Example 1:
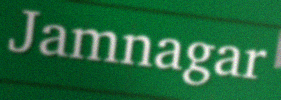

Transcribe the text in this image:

Jamnagar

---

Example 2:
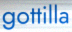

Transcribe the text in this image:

gottilla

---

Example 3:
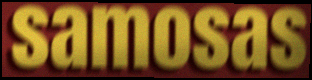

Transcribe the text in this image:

samosas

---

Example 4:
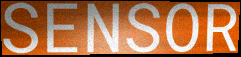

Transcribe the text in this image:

SENSOR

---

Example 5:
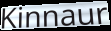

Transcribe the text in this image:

Kinnaur